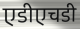
एडीएचडी